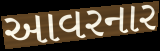
આવરનાર